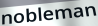
nobleman